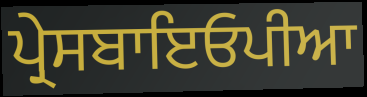
ਪ੍ਰੇਸਬਾਇਓਪੀਆ